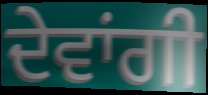
ਦੇਵਾਂਗੀ